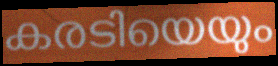
കരടിയെയും